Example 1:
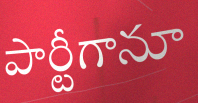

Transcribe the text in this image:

పార్టీగానూ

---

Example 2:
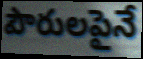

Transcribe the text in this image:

పౌరులపైనే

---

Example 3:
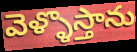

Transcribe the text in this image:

వెళ్ళొస్తాను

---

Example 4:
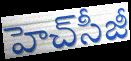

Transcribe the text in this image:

హెచ్‌సీజీ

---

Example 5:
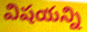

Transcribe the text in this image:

విషయన్ని